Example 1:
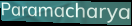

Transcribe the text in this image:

Paramacharya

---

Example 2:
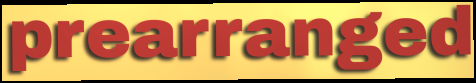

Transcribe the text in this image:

prearranged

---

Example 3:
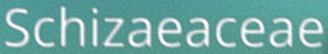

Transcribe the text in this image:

Schizaeaceae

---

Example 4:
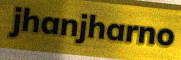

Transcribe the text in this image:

jhanjharno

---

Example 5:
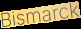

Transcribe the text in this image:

Bismarck